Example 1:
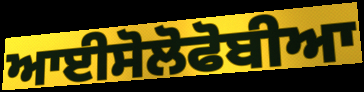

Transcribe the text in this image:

ਆਈਸੋਲੋਫੋਬੀਆ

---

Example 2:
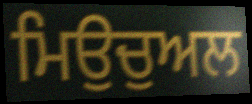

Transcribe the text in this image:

ਮਿਉਚੁਅਲ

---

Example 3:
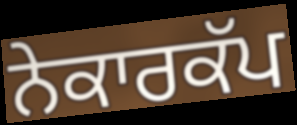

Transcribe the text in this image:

ਨੇਕਾਰਕੱਪ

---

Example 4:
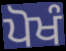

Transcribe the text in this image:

ਪੋਖੰ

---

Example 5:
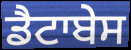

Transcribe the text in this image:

ਡੈਟਾਬੇਸ